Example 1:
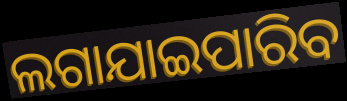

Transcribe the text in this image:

ଲଗାଯାଇପାରିବ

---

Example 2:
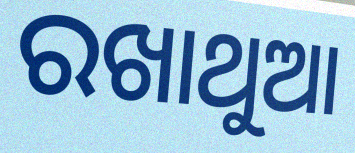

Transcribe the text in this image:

ରଖାଥୁଆ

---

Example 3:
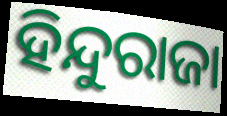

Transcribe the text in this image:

ହିନ୍ଦୁରାଜା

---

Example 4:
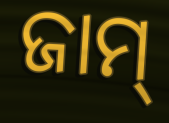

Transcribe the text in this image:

ଜାମ୍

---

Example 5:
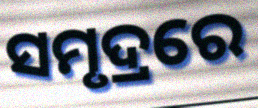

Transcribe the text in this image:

ସମୃଦ୍ରରେ